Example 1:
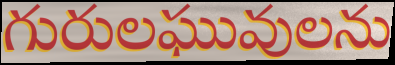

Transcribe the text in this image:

గురులఘువులను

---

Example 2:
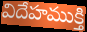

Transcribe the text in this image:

విదేహముక్తి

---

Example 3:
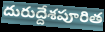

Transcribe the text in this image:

దురుద్దేశపూరిత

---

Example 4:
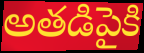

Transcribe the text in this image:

అతడిపైకి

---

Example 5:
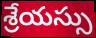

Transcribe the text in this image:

శ్రేయస్సు